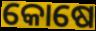
କୋଷେ